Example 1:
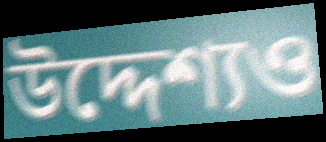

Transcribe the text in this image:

উদ্দেশ্যও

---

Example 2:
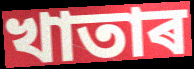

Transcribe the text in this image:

খাতাৰ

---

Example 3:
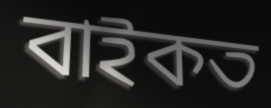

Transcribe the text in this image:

বাইকত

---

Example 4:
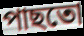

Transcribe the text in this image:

পাছতো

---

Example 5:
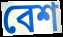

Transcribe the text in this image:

বেশ